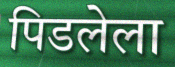
पिडलेला